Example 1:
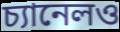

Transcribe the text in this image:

চ্যানেলও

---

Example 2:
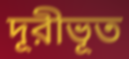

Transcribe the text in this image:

দূরীভূত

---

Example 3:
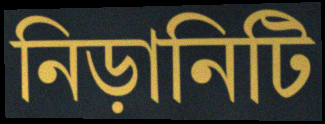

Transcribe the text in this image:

নিড়ানিটি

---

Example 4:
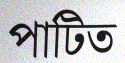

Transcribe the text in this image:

পাটিত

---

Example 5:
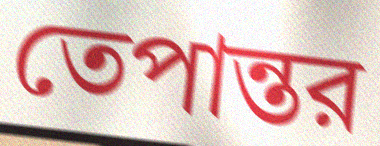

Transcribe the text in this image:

তেপান্তর